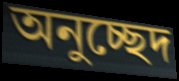
অনুচ্ছেদ